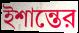
ইশান্তের